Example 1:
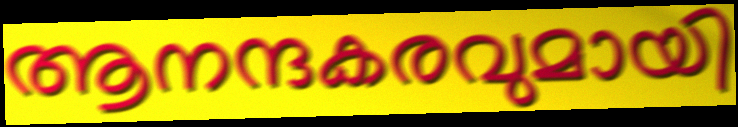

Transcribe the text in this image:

ആനന്ദകരവുമായി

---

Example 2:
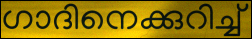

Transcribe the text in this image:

ഗാദിനെക്കുറിച്ച്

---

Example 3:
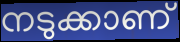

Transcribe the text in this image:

നടുക്കാണ്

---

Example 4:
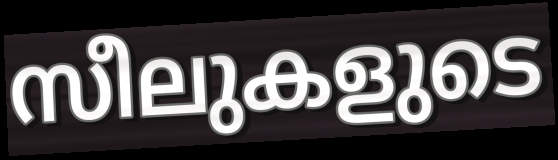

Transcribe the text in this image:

സീലുകളുടെ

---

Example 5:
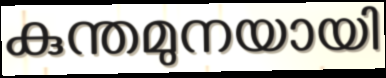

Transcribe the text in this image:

കുന്തമുനയായി